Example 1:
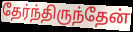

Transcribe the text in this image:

தேர்ந்திருந்தேன்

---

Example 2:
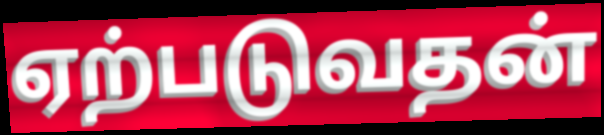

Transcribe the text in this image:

ஏற்படுவதன்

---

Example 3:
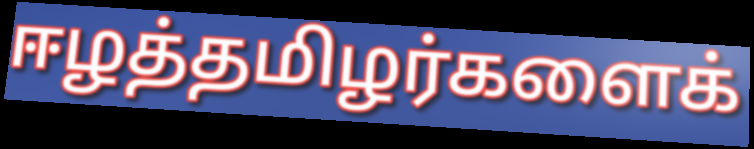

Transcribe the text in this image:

ஈழத்தமிழர்களைக்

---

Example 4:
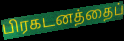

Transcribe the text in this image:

பிரகடனத்தைப்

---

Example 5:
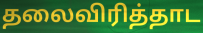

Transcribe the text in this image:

தலைவிரித்தாட